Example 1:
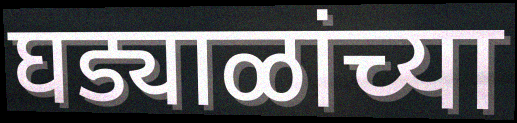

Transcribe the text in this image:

घड्याळांच्या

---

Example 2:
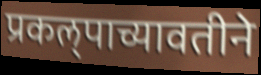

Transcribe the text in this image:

प्रकल्पाच्यावतीने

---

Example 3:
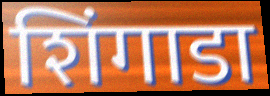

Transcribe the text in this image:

शिंगाडा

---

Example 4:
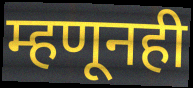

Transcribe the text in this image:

म्‍हणूनही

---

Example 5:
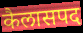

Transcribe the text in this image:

कैलासपद